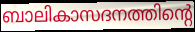
ബാലികാസദനത്തിന്റെ